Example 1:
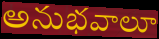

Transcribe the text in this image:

అనుభవాలూ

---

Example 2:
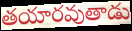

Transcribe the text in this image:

తయారవుతాడు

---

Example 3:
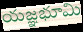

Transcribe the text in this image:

యజ్ఞభూమి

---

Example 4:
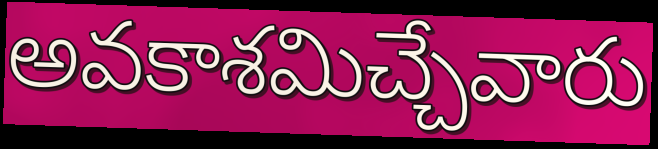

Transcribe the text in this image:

అవకాశమిచ్చేవారు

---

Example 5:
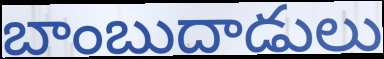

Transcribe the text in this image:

బాంబుదాడులు